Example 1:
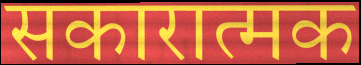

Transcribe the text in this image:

सकारात्मक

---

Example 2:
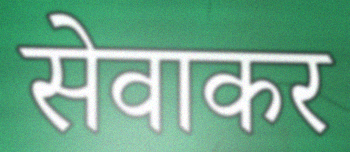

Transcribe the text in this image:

सेवाकर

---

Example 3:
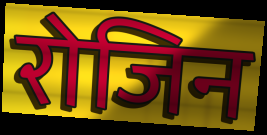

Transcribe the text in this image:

रोजिन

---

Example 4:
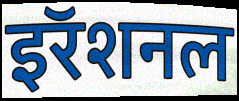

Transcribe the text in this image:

इरॅशनल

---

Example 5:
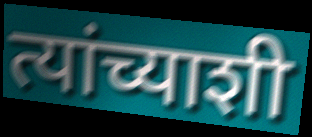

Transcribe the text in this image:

त्यांच्याशी